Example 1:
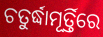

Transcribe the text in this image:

ଚତୁର୍ଦ୍ଧାମୂର୍ତ୍ତିରେ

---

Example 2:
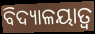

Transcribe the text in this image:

ବିଦ୍ୟାଳୟାତ୍ବ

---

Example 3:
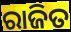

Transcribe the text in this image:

ରାଜିତ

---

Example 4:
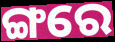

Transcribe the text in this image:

ଙ୍ଗରେ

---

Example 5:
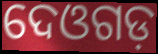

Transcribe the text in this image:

ଦେଓଗଡ଼